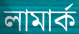
লামার্ক